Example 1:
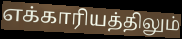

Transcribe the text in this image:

எக்காரியத்திலும்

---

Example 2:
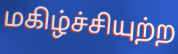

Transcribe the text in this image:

மகிழ்ச்சியுற்ற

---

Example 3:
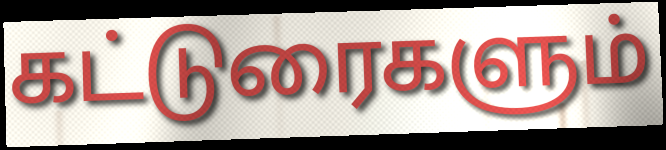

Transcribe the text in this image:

கட்டுரைகளும்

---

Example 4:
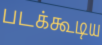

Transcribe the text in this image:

படக்கூடிய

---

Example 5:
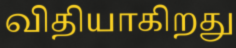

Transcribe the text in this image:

விதியாகிறது